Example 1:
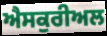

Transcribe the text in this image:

ਐਸਕੁਰੀਅਲ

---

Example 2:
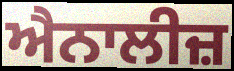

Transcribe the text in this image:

ਐਨਾਲੀਜ਼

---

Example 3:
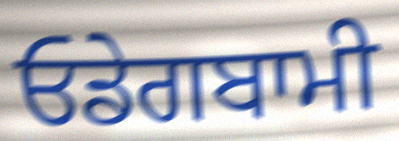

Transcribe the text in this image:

ਓਡੇਗਬਾਮੀ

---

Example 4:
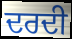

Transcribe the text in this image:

ਦਰਦੀ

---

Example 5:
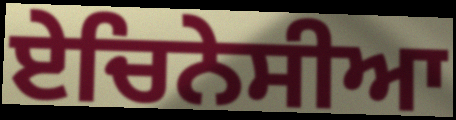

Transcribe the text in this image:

ਏਚਿਨੇਸੀਆ